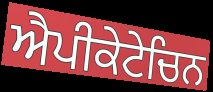
ਐਪੀਕੇਟੇਚਿਨ